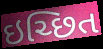
ઇચ્છિત